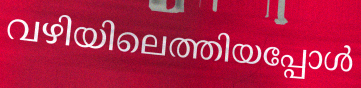
വഴിയിലെത്തിയപ്പോൾ